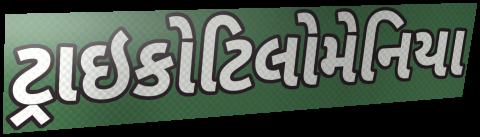
ટ્રાઇકોટિલોમેનિયા